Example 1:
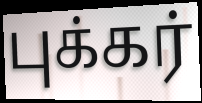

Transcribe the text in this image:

புக்கர்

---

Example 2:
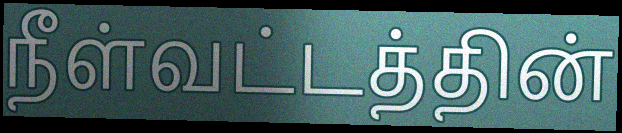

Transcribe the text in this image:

நீள்வட்டத்தின்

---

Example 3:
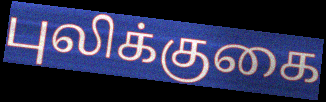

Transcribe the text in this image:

புலிக்குகை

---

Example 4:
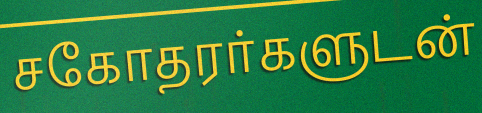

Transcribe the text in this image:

சகோதரர்களுடன்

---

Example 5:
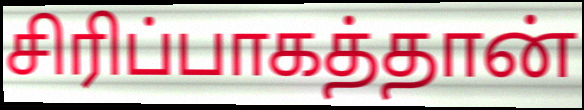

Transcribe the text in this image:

சிரிப்பாகத்தான்